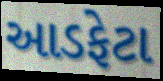
આડફેટા